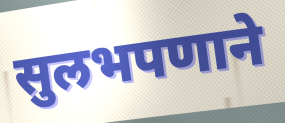
सुलभपणाने